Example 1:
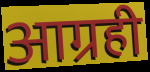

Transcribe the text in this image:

आग्रही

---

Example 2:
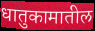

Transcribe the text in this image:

धातुकामातील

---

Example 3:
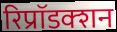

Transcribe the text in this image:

रिप्रॉडक्शन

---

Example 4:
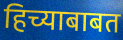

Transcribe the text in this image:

हिच्याबाबत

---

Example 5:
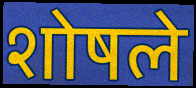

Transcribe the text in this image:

शोषले